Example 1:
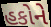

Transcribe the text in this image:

હકોને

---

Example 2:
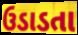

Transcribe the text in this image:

ઉડાડતા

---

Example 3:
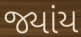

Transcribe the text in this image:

જ્યાંય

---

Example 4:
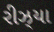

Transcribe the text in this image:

રીઝ્યા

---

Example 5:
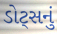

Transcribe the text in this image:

ડોટ્સનું